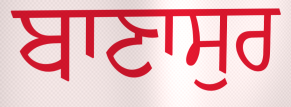
ਬਾਣਾਸੁਰ